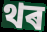
থৰ